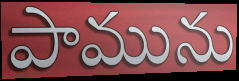
పామును